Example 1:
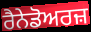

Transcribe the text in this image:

ਰੈਨੇਡੋਅਰਜ਼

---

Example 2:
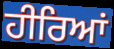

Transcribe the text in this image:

ਹੀਰਿਆਂ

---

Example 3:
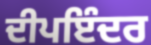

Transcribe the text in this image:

ਦੀਪਇੰਦਰ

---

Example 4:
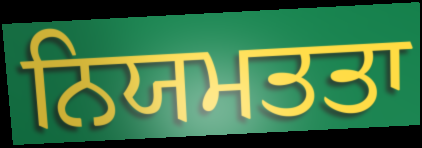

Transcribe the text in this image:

ਨਿਯਮਤਤਾ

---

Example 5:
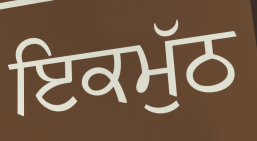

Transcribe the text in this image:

ਇਕਮੁੱਠ